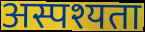
अस्पश्यता